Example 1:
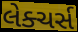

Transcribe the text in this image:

લેક્ચર્સ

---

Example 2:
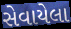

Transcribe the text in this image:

સેવાયેલા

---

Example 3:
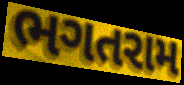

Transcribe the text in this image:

ભગતરામ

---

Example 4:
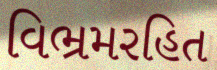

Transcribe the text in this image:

વિભ્રમરહિત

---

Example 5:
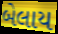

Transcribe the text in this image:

બેલાય